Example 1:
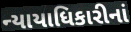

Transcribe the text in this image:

ન્યાયાધિકારીનાં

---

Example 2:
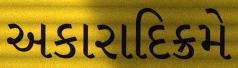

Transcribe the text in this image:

અકારાદિક્રમે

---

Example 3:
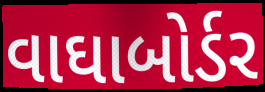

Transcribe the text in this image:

વાઘાબોર્ડર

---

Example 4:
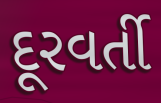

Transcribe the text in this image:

દૂરવર્તી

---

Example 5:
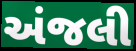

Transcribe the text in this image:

અંજલી